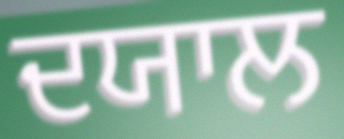
ਦਯਾਲ